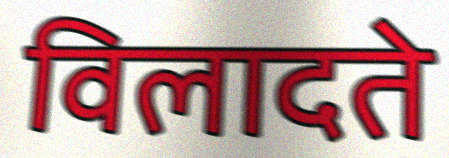
विलादते